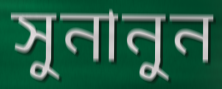
সুনানুন